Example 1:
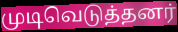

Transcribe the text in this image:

முடிவெடுத்தனர்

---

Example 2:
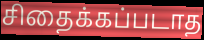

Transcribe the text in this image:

சிதைக்கப்படாத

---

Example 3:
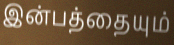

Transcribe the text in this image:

இன்பத்தையும்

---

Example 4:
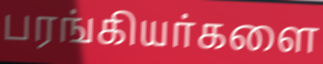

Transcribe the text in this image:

பரங்கியர்களை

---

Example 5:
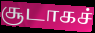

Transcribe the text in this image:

சூடாகச்